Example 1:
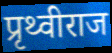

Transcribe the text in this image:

प्रृथ्वीराज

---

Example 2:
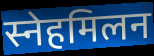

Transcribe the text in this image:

स्नेहमिलन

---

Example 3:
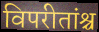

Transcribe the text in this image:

विपरीतांश्च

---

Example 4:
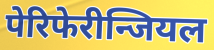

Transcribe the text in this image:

पेरिफेरीन्जियल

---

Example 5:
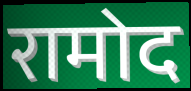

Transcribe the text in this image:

रामोद